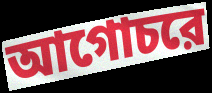
আগোচরে